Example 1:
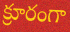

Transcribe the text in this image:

క్రూరంగా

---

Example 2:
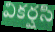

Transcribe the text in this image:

వికర్షసి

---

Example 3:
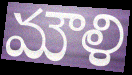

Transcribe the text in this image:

మౌళి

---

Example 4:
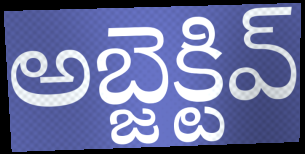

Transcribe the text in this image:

అబ్జెక్టివ్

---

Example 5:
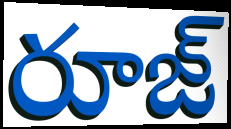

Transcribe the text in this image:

రూజ్